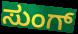
ಸುಂಗ್